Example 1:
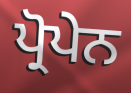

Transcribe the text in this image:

ਪ੍ਰੋਪੇਨ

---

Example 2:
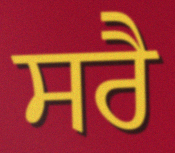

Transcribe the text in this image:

ਸਰੈ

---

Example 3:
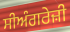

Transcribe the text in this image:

ਸੀਅੰਗਰੇਜ਼ੀ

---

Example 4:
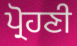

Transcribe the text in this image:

ਪ੍ਰੋਹਣੀ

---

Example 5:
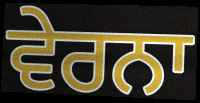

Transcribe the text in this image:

ਵੇਰਨਾ